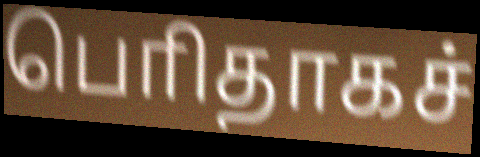
பெரிதாகச்